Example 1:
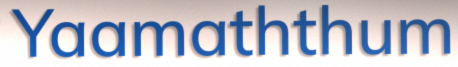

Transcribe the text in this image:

Yaamaththum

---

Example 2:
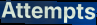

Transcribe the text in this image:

Attempts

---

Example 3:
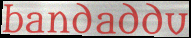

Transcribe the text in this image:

bandaddu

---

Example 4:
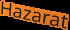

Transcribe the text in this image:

Hazarat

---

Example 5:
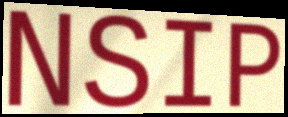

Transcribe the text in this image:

NSIP